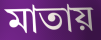
মাতায়